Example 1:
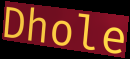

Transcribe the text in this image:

Dhole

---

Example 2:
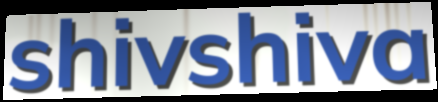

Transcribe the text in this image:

shivshiva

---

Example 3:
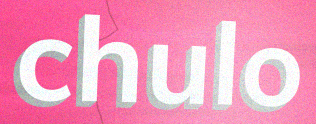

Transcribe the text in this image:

chulo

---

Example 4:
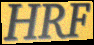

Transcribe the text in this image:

HRF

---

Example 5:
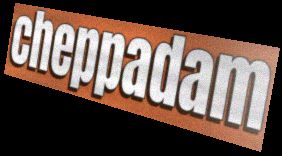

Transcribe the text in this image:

cheppadam